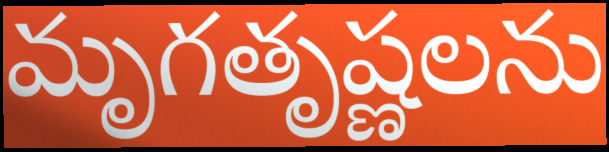
మృగతృష్ణలను